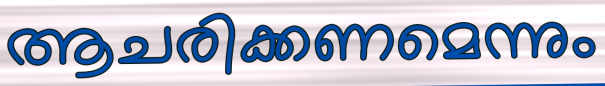
ആചരിക്കണമെന്നും